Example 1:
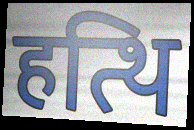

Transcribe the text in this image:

हत्थि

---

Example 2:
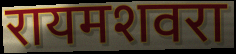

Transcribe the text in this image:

रायमशवरा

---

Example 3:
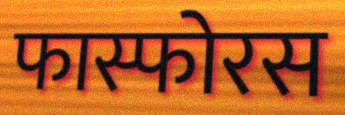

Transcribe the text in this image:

फास्‍फोरस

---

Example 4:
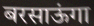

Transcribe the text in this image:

बरसाऊंगा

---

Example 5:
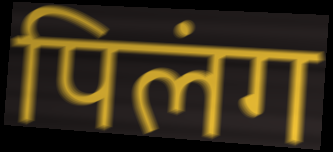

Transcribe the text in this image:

पिलंग